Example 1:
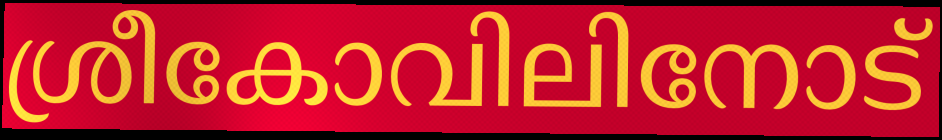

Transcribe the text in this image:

ശ്രീകോവിലിനോട്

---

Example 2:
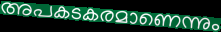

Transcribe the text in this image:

അപകടകരമാണെന്നും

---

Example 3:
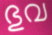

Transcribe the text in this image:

ഭുവ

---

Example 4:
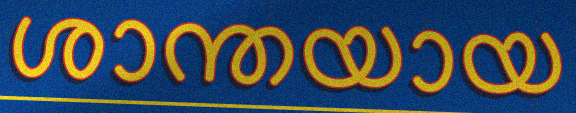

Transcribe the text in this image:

ശാന്തയായ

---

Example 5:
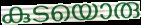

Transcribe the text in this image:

കുടയൊരു